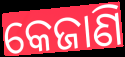
କେଜାଣି